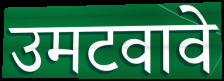
उमटवावे